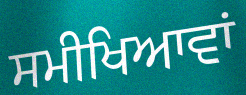
ਸਮੀਖਿਆਵਾਂ